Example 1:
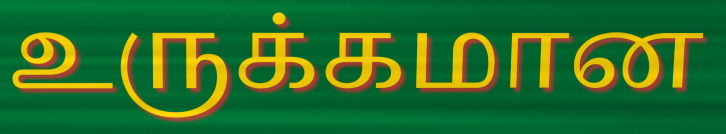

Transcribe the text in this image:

உருக்கமான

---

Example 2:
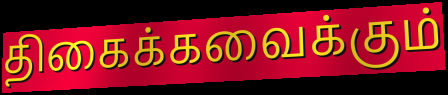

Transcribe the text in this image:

திகைக்கவைக்கும்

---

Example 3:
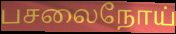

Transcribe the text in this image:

பசலைநோய்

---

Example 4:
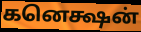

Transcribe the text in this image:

கனெக்ஷன்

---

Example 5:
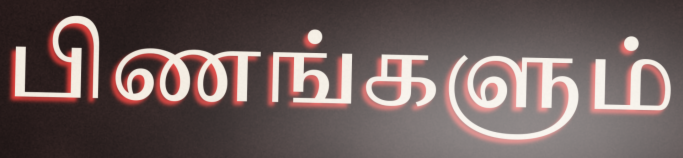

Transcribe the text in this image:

பிணங்களும்